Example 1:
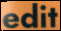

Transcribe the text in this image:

edit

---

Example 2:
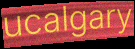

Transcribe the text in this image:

ucalgary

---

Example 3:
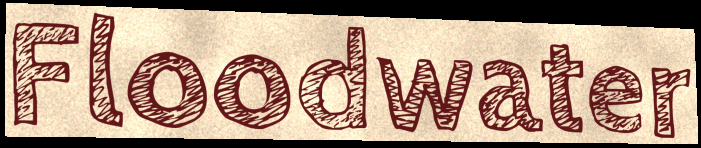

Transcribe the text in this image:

Floodwater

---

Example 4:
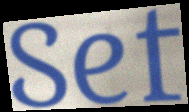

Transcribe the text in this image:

Set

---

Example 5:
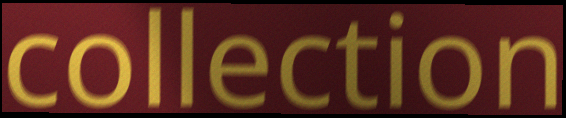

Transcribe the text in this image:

collection